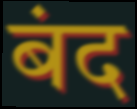
बंद